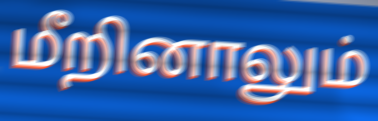
மீறினாலும்